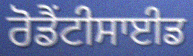
ਰੋਡੈਂਟੀਸਾਈਡ